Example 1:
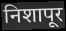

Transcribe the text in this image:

निशापूर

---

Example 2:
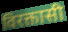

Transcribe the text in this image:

विरक्तासी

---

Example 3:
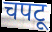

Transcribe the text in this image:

चपटू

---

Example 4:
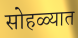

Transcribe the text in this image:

सोहळ्यात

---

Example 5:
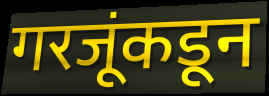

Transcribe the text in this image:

गरजूंकडून